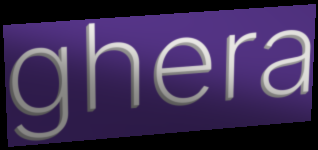
ghera